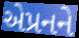
એપ્રનને